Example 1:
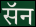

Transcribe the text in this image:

सॅन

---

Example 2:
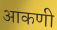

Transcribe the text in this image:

आकणी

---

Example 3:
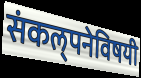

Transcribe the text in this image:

संकल्पनेविषयी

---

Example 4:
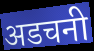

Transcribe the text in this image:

अडचनी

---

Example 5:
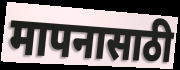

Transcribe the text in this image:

मापनासाठी